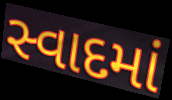
સ્વાદમાં